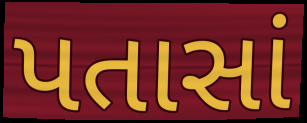
પતાસાં